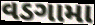
વડગામા